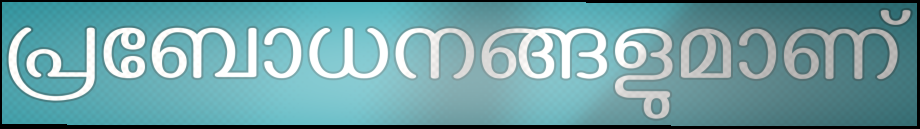
പ്രബോധനങ്ങളുമാണ്